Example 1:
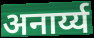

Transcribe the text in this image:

अनार्य्य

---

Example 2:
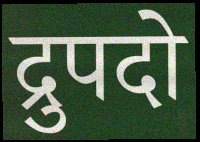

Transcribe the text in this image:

द्रुपदो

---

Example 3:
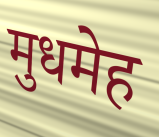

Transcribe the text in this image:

मुधमेह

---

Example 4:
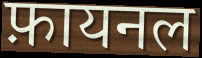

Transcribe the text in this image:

फ़ायनल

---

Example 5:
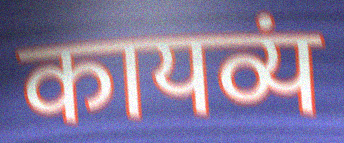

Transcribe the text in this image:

कायव्यं